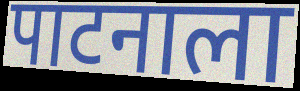
पाटनाला